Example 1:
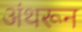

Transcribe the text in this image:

अंथरून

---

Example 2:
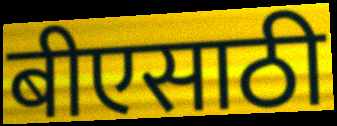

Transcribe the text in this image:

बीएसाठी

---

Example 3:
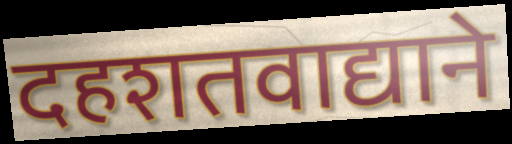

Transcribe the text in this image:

दहशतवाद्याने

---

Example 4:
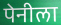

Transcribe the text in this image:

पेनीला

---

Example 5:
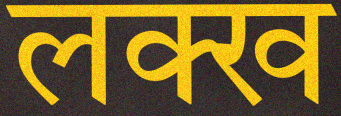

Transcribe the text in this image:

लक्ख